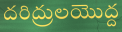
దరిద్రులయొద్ద